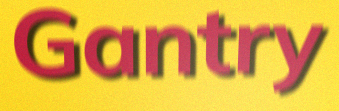
Gantry